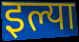
इल्या